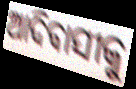
ଆଦିବାସୀକୁ